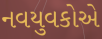
નવયુવકોએ